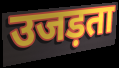
उजड़ता